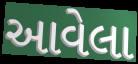
આવેલા